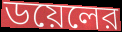
ডয়েলের